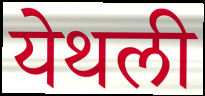
येथली